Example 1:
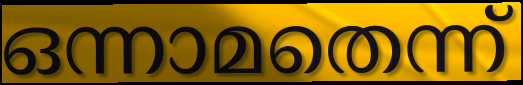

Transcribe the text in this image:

ഒന്നാമതെന്ന്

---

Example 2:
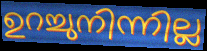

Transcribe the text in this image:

ഉറച്ചുനിന്നില്ല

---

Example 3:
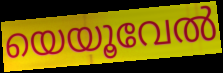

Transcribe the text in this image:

യെയൂവേൽ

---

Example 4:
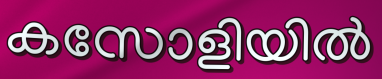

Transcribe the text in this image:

കസോളിയിൽ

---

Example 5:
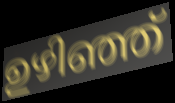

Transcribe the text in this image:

ഉഴിഞ്ഞ്